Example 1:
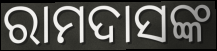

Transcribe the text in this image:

ରାମଦାସଙ୍କ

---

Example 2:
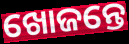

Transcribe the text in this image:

ଖୋଜନ୍ତେ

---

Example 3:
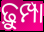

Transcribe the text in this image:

ଢ଼ୁମ୍ପା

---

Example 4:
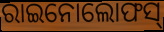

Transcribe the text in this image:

ରାଇନୋଲୋଫସ୍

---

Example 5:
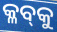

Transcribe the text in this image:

କ୍ଳବ୍‍କୁ